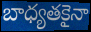
బాధ్యతకైనా